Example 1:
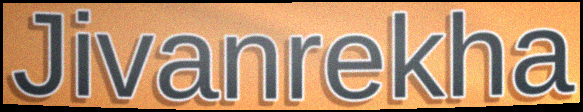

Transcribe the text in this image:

Jivanrekha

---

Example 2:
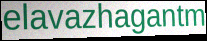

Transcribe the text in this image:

elavazhagantm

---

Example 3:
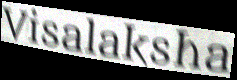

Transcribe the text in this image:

Visalaksha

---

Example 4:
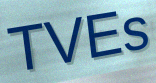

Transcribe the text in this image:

TVEs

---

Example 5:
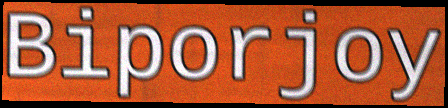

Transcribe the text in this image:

Biporjoy